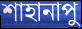
শাহানাপু